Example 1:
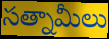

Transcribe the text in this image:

సత్నామీలు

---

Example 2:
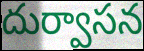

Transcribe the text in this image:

దుర్వాసన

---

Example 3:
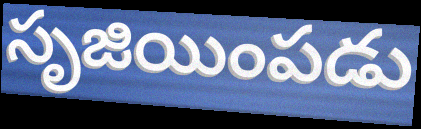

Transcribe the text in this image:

సృజియింపడు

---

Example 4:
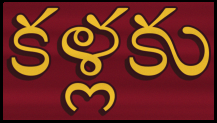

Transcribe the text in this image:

కళ్లకు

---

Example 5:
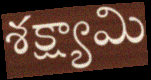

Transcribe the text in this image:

శక్ష్యామి